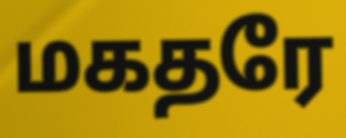
மகதரே